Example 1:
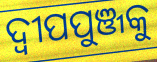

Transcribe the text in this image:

ଦ୍ଵୀପପୁଞ୍ଜକୁ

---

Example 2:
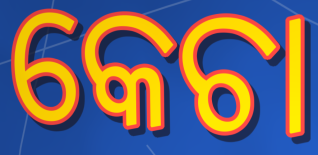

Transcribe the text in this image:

କେଚା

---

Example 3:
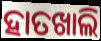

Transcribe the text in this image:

ହାତଖାଲି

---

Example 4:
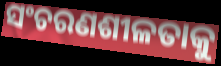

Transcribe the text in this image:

ସଂଚରଣଶୀଳତାକୁ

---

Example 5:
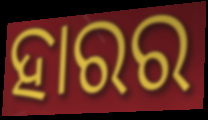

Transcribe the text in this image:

ହାରର